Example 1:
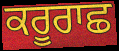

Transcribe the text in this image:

ਕਰੂਰਾਛ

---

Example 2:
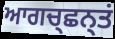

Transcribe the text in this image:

ਆਗਚ੍ਛਨ੍ਤਂ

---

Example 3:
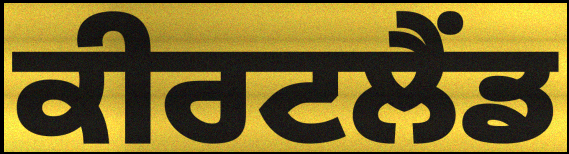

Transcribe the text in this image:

ਕੀਰਟਲੈਂਡ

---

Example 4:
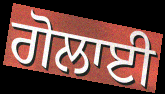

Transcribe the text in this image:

ਗੋਲਾਈ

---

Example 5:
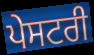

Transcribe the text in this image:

ਪੇਸਟਰੀ